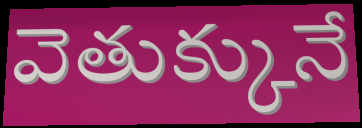
వెతుక్కునే